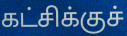
கட்சிக்குச்